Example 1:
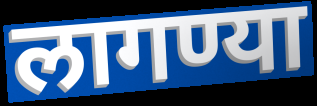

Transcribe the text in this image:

लागण्या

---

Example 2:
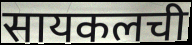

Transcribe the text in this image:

सायकलची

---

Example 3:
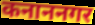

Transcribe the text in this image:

कनाननगर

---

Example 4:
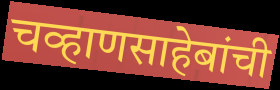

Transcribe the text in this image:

चव्हाणसाहेबांची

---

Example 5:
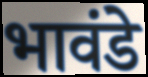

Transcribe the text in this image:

भावंडे